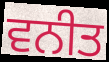
ਵਨੀਤ